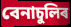
বেনাচুলিৰ